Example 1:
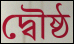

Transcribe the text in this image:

দ্বৌষ্ঠ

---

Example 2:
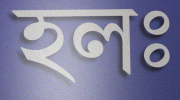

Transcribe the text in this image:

হলঃ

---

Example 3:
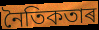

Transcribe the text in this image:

নৈতিকতাৰ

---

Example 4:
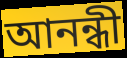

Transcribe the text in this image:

আনন্ধী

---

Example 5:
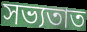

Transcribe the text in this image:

সভ্যতাত